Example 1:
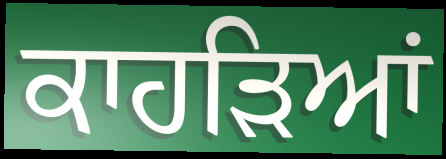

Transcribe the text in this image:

ਕਾਹੜਿਆਂ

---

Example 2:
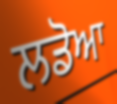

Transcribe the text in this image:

ਲਡੋਆ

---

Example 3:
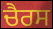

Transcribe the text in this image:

ਚੈਰਸ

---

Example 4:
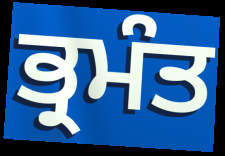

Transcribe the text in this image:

ਭ੍ਰਮੰਤ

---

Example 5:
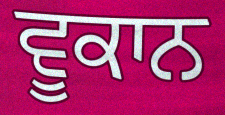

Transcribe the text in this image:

ਵੂਕਾਨ